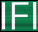
IFI